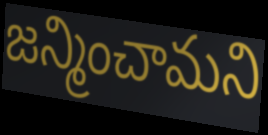
జన్మించామని